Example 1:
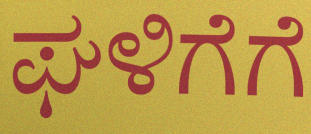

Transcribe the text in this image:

ಘಳಿಗೆಗೆ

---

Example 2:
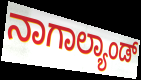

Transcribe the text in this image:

ನಾಗಾಲ್ಯಾಂಡ್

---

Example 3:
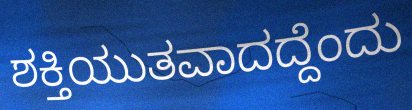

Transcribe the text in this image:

ಶಕ್ತಿಯುತವಾದದ್ದೆಂದು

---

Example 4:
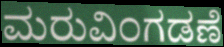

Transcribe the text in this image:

ಮರುವಿಂಗಡಣೆ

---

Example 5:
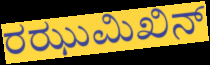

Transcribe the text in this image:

ರಝುಮಿಖಿನ್